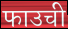
फाउची